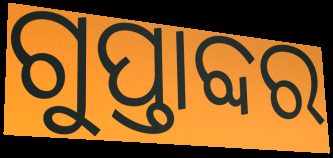
ଗୁପ୍ତାବ୍ଦର